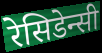
रेसिडेन्सी